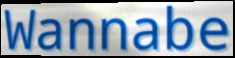
Wannabe